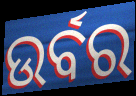
ଉର୍ବର